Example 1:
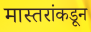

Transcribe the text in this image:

मास्तरांकडून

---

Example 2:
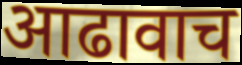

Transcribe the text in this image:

आढावाच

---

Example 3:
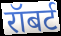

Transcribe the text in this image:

रॉबर्ट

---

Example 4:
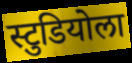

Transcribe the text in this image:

स्टुडियोला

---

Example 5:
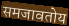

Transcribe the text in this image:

समजावतोय